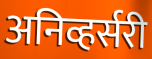
अनिव्हर्सरी